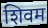
शिवम